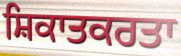
ਸ਼ਿਕਾਤਕਰਤਾ